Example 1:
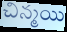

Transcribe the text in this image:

చిన్మయి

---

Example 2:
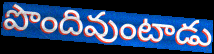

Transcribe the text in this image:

పొందివుంటాడు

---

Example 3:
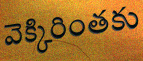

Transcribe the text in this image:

వెక్కిరింతకు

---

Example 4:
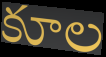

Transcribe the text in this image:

కూల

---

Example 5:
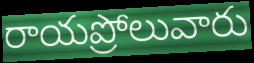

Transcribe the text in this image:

రాయప్రోలువారు